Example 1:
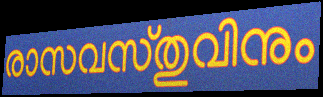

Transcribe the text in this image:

രാസവസ്തുവിനും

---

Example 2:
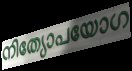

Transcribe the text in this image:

നിത്യോപയോഗ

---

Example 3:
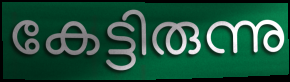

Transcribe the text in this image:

കേട്ടിരുന്നു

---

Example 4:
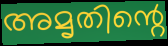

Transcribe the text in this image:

അമൃതിന്റെ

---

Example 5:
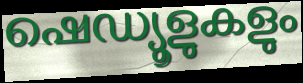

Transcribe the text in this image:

ഷെഡ്യൂളുകളും